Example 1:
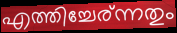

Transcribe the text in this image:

എത്തിച്ചേര്ന്നതും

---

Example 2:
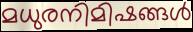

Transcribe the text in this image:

മധുരനിമിഷങ്ങൾ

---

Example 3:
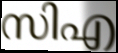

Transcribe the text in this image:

സിഎ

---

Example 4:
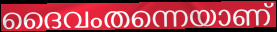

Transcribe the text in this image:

ദൈവംതന്നെയാണ്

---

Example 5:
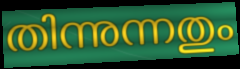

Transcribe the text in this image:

തിന്നുന്നതും